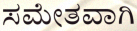
ಸಮೇತವಾಗಿ